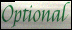
Optional